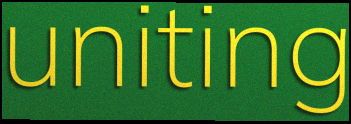
uniting